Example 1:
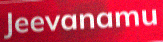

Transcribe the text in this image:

Jeevanamu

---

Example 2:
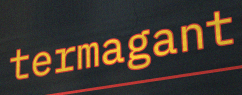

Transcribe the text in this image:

termagant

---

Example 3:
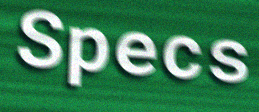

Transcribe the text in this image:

Specs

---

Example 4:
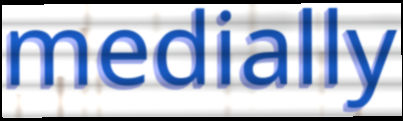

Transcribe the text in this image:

medially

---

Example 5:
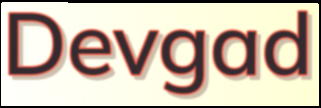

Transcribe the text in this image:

Devgad